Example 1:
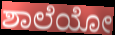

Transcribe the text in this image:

ಶಾಲೆಯೋ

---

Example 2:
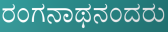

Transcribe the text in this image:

ರಂಗನಾಥನಂದರು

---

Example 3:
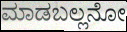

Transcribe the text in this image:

ಮಾಡಬಲ್ಲನೋ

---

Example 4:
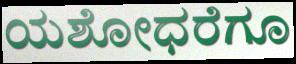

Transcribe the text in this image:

ಯಶೋಧರೆಗೂ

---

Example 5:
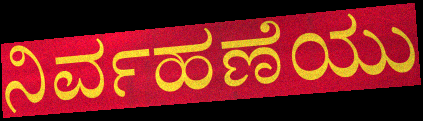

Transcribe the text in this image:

ನಿರ್ವಹಣೆಯು